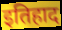
इतिहाद